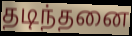
தடிந்தனை